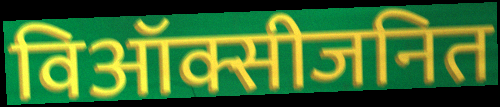
विऑक्सीजनित